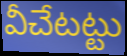
వీచేటట్టు